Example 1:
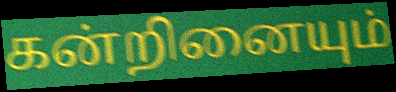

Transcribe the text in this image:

கன்றினையும்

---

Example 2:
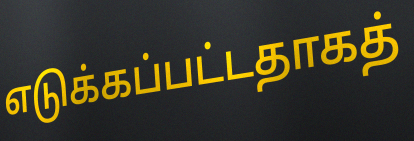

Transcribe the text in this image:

எடுக்கப்பட்டதாகத்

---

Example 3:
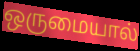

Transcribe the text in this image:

ஒருமையால்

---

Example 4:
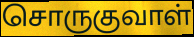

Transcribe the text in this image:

சொருகுவாள்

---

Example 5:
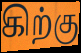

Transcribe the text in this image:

கிற்கு